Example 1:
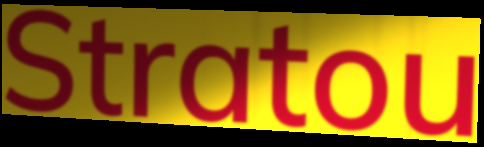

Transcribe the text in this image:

Stratou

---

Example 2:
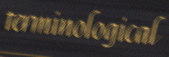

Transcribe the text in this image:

terminological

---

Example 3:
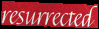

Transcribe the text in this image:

resurrected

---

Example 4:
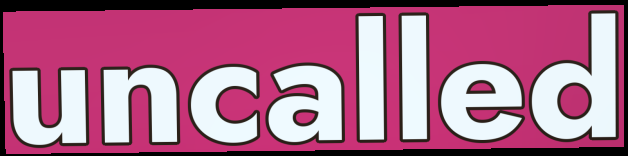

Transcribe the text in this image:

uncalled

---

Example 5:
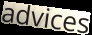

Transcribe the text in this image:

advices